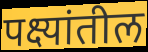
पक्ष्यांतील